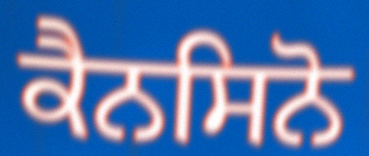
ਕੈਨਸਿਨੋ